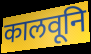
कालवूनि